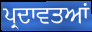
ਪ੍ਰਦਾਵਤਆਂ